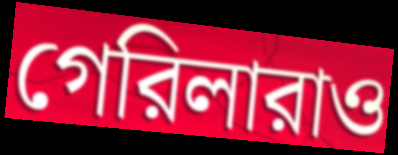
গেরিলারাও